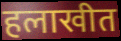
हलाखीत